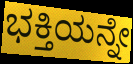
ಭಕ್ತಿಯನ್ನೇ